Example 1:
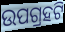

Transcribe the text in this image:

ଉପଗ୍ରହଟି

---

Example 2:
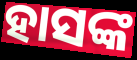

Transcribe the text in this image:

ହାସଙ୍କ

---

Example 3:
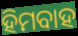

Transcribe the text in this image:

ହିମବାହ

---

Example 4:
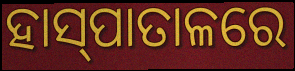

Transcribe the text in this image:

ହାସ୍‌ପାତାଳରେ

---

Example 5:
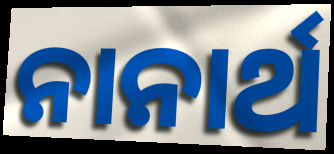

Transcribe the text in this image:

ନାନାର୍ଥ